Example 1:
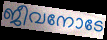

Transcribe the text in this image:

ജീവനോടേ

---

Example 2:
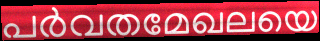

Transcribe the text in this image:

പർവതമേഖലയെ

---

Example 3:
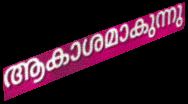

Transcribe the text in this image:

ആകാശമാകുന്നു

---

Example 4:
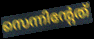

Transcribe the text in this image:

സെന്നിന്റേത്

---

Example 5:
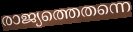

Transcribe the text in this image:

രാജ്യത്തെതന്നെ